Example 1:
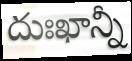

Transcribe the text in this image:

దుఃఖాన్నీ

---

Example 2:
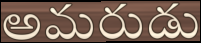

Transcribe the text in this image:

అమరుడు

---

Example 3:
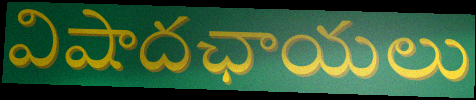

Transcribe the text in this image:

విషాదఛాయలు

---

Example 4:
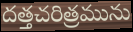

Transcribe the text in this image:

దత్తచరిత్రమును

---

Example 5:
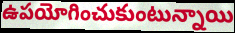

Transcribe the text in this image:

ఉపయోగించుకుంటున్నాయి